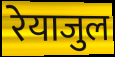
रेयाजुल